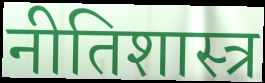
नीतिशास्त्र